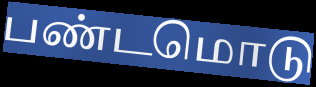
பண்டமொடு